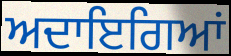
ਅਦਾਇਗਿਆਂ